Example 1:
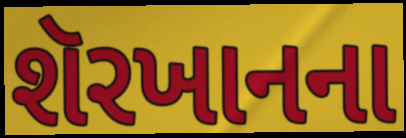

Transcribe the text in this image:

શૅરખાનના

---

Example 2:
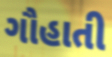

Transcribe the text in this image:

ગૌહાતી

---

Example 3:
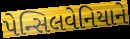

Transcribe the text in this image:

પેન્સિલવેનિયાને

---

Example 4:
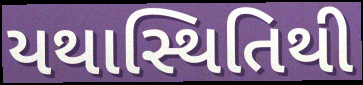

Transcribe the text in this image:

યથાસ્થિતિથી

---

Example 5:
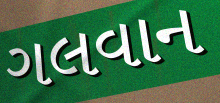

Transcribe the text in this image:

ગલવાન